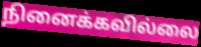
நினைக்கவில்லை